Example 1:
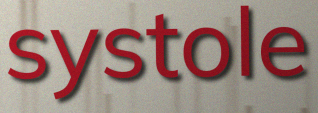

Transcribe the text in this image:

systole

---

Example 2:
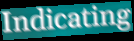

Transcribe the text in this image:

Indicating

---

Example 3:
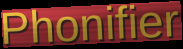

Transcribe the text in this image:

Phonifier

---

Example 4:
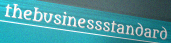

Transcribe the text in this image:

thebusinessstandard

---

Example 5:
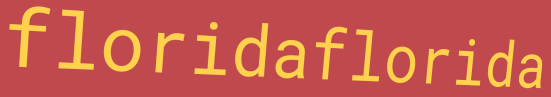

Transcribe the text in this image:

floridaflorida